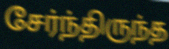
சேர்ந்திருந்த